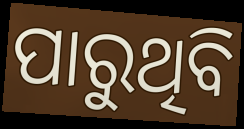
ପାରୁଥିବି